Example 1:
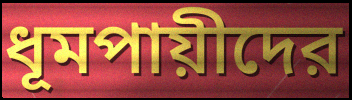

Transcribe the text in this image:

ধূমপায়ীদের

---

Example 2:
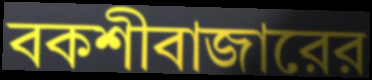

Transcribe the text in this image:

বকশীবাজারের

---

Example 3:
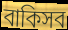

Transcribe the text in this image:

বাকিসব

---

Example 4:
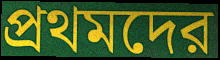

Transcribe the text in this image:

প্রথমদের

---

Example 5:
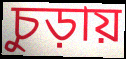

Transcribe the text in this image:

চুড়ায়